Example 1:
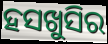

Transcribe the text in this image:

ହସଖୁସିର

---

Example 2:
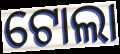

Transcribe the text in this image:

ଟୋଲା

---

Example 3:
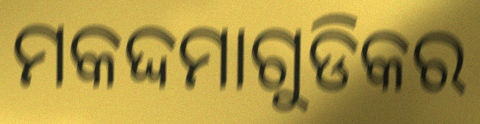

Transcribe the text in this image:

ମକଦ୍ଦମାଗୁଡିକର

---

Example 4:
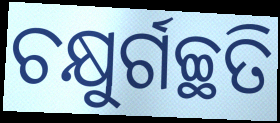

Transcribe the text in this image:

ଚକ୍ଷୁର୍ଗଚ୍ଛତି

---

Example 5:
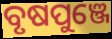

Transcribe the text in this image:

ବୃଷପୁଞ୍ଜେ